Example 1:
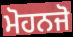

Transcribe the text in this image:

ਮੋਹਨਜੋ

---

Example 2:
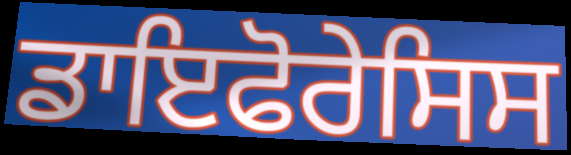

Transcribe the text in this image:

ਡਾਇਫੋਰੇਸਿਸ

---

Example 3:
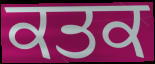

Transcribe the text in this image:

ਕਤਕ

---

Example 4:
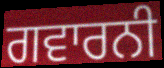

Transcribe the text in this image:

ਗਵਾਰਨੀ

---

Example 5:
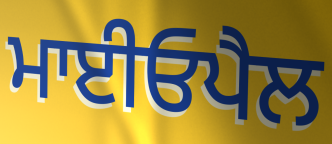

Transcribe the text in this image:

ਮਾਈਓਪੈਲ